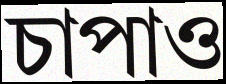
চাপাও